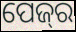
ପେଜ୍‌ର